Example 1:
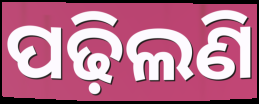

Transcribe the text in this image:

ପଢ଼ିଲଣି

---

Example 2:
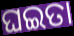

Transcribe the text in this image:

ଘଇତା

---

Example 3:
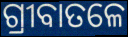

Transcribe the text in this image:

ଗ୍ରୀବାତଳେ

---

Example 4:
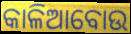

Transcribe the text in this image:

କାଳିଆବୋଉ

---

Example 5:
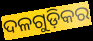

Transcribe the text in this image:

ଦଳଗୁଡ଼ିକର